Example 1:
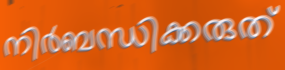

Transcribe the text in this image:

നിർബന്ധിക്കരുത്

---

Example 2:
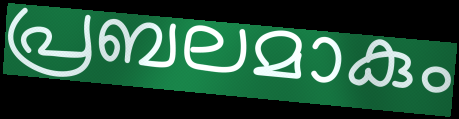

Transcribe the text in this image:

പ്രബലമാകും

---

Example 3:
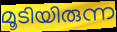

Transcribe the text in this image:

മൂടിയിരുന്ന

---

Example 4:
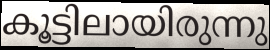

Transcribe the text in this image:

കൂട്ടിലായിരുന്നു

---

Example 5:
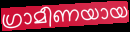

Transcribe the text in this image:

ഗ്രാമീണയായ